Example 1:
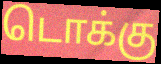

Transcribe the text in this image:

டொக்கு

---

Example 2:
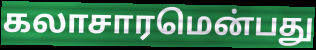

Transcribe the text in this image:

கலாசாரமென்பது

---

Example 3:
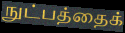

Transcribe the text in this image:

நுட்பத்தைக்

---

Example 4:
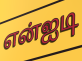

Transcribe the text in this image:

என்ஐடி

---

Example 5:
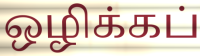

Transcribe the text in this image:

ஒழிக்கப்